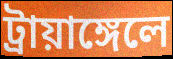
ট্রায়াঙ্গেলে